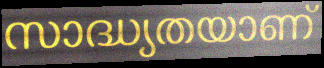
സാദ്ധ്യതയാണ്